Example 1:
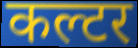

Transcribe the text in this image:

कल्टर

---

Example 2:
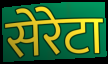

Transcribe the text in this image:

सेरेटा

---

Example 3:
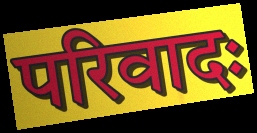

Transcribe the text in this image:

परिवादः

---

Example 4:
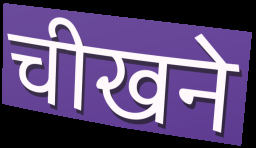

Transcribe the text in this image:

चीखने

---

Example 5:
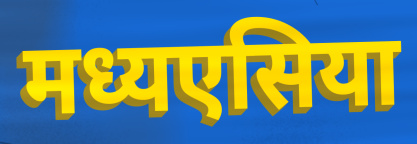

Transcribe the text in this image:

मध्यएसिया